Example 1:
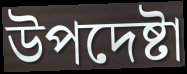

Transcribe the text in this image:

উপদেষ্টা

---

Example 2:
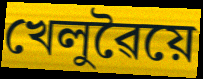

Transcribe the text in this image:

খেলুৱৈয়ে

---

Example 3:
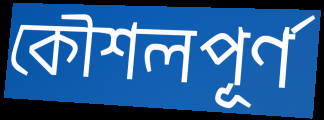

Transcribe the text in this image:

কৌশলপূৰ্ণ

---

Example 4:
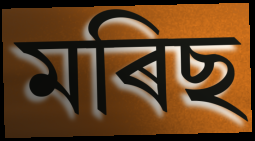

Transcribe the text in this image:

মৰিছ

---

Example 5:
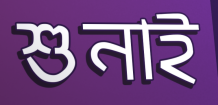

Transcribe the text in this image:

শুনাই